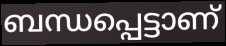
ബന്ധപ്പെട്ടാണ്